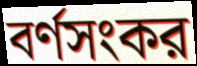
বর্ণসংকর